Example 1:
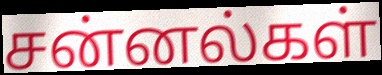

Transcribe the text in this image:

சன்னல்கள்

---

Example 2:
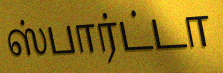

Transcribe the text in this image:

ஸ்பார்ட்டா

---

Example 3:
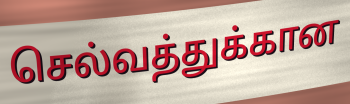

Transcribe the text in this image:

செல்வத்துக்கான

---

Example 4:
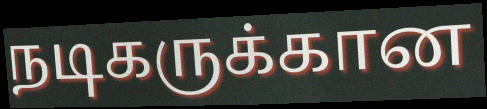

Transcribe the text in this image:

நடிகருக்கான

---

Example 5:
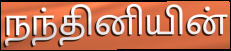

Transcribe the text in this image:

நந்தினியின்